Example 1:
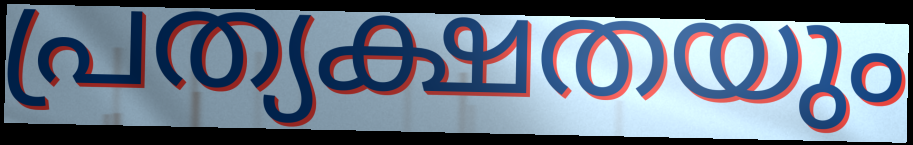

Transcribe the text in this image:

പ്രത്യക്ഷതയും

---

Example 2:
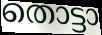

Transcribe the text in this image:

തൊട്ടാ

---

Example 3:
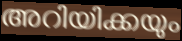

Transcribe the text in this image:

അറിയിക്കയും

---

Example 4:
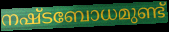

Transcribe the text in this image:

നഷ്ടബോധമുണ്ട്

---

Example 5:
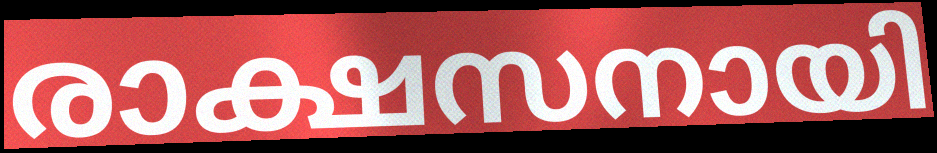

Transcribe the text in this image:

രാക്ഷസനായി